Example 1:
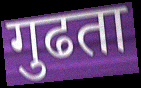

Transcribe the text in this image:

गुढता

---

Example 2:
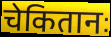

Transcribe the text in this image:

चेकितानः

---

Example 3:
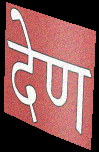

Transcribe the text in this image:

देण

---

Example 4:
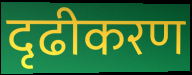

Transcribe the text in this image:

दृढीकरण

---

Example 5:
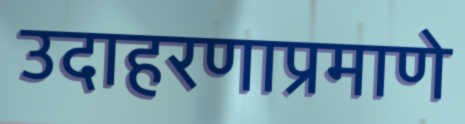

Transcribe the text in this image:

उदाहरणाप्रमाणे